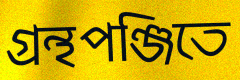
গ্রন্থপঞ্জিতে